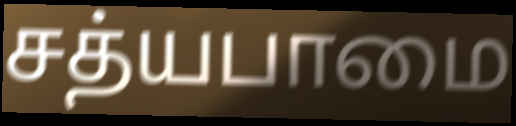
சத்யபாமை